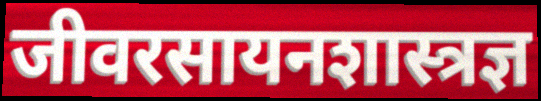
जीवरसायनशास्त्रज्ञ